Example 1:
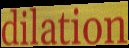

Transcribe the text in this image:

dilation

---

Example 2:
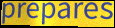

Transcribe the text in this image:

prepares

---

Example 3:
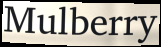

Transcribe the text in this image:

Mulberry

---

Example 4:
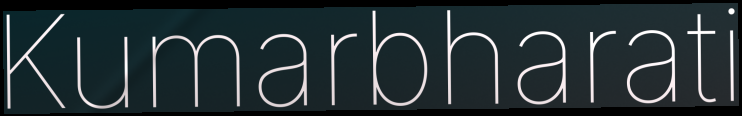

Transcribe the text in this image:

Kumarbharati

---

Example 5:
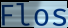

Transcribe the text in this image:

Flos